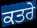
ਕਤਰੇ